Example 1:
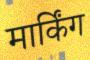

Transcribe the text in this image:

मार्किंग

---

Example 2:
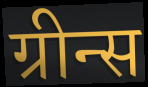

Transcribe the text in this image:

ग्रीन्स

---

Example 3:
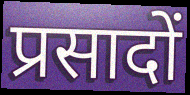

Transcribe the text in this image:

प्रसादों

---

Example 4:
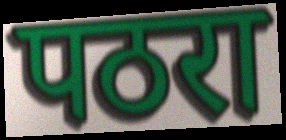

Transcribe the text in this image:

पठरा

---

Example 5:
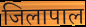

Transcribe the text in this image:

जिलापाल